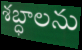
శబ్ధాలను